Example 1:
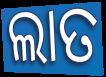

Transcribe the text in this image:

ଲାତ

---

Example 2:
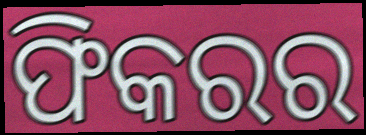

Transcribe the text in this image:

ଫିକରର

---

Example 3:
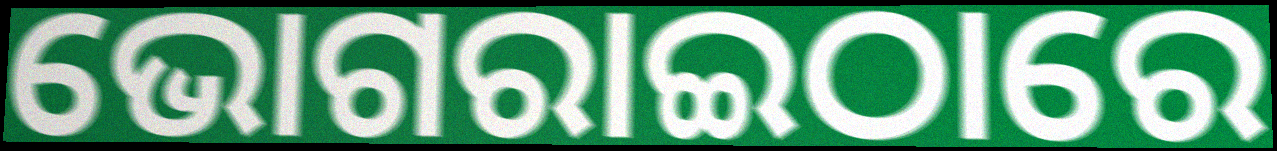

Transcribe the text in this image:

ଭୋଗରାଇଠାରେ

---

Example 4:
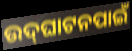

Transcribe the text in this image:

ଉଦ୍‌ଘାଟନପାଇଁ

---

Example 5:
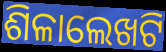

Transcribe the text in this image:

ଶିଳାଲେଖଟି